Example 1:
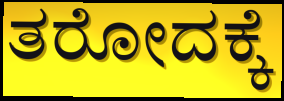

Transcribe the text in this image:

ತರೋದಕ್ಕೆ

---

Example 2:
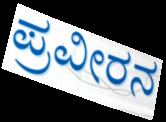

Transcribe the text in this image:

ಪ್ರವೀರನ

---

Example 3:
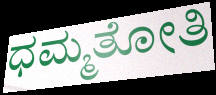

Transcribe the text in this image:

ಧಮ್ಮತೋತಿ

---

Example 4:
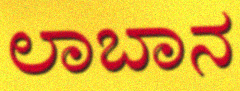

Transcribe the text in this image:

ಲಾಬಾನ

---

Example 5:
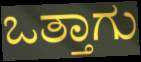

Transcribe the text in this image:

ಒತ್ತಾಗು